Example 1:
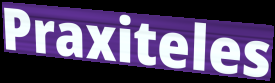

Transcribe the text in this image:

Praxiteles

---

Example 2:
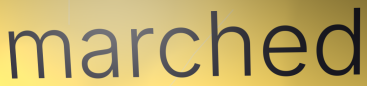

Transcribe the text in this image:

marched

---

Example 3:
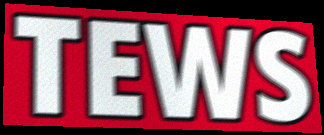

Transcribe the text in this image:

TEWS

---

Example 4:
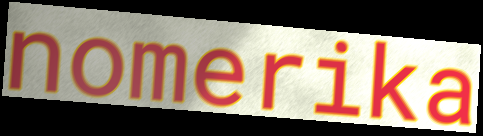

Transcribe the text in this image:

nomerika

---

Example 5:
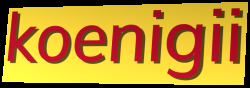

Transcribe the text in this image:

koenigii